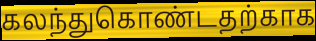
கலந்துகொண்டதற்காக